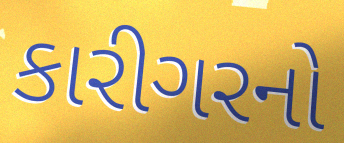
કારીગરનો